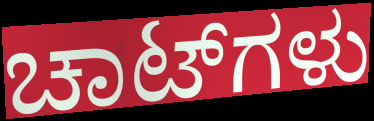
ಚಾಟ್‌ಗಳು